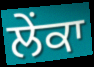
ਲੇਂਕਾ